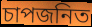
চাপজনিত